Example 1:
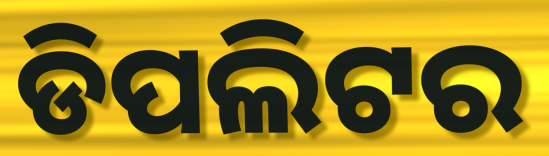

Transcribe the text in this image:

ଡିପଲିଟର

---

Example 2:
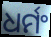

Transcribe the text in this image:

ଧର୍ମଂ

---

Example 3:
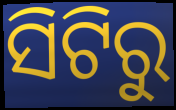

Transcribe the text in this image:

ସିଟିରୁ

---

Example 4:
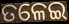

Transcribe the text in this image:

ତଳେଇ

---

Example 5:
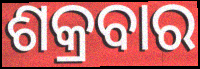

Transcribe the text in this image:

ଶକ୍ରବାର